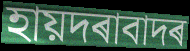
হায়দৰাবাদৰ